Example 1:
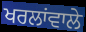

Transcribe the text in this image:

ਖਰਲਾਂਵਾਲੇ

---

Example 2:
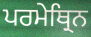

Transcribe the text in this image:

ਪਰਮੇਥ੍ਰਿਨ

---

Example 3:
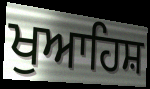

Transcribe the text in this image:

ਖੁਆਹਿਸ਼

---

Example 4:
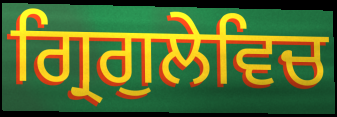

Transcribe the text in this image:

ਗ੍ਰਿਗੁਲੇਵਿਚ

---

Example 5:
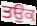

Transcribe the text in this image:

ਤਉਕ